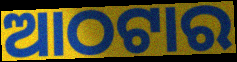
ଆଠଟାର